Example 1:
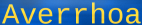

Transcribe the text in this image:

Averrhoa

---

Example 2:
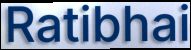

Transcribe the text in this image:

Ratibhai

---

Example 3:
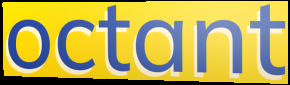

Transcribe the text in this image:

octant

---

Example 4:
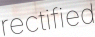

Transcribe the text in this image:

rectified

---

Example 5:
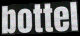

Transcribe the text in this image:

bottel